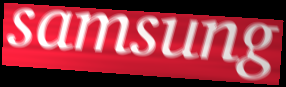
samsung